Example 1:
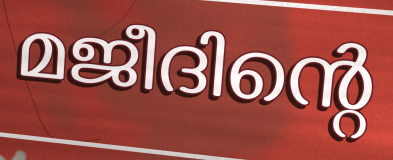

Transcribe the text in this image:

മജീദിന്റെ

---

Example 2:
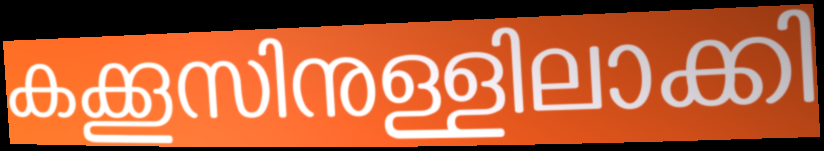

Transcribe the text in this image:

കക്കൂസിനുള്ളിലാക്കി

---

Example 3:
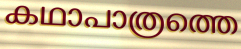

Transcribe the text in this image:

കഥാപാത്രത്തെ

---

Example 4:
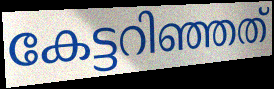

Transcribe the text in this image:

കേട്ടറിഞ്ഞത്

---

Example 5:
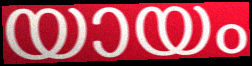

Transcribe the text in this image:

യായം